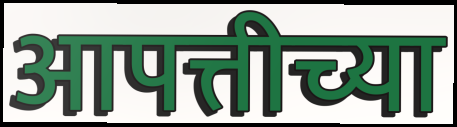
आपत्तीच्या